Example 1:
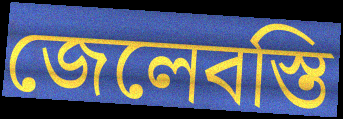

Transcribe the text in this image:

জেলেবস্তি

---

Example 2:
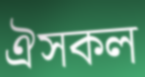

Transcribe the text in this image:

ঐসকল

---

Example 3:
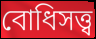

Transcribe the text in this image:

বোধিসত্ত্ব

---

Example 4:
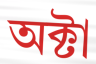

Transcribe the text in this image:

অক্টা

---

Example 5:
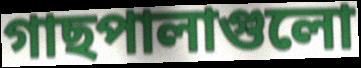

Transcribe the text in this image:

গাছপালাগুলো